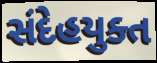
સંદેહયુક્ત